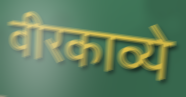
वीरकाव्ये